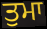
ਤੁਮਾ